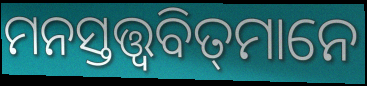
ମନସ୍ତତ୍ତ୍ୱବିତ୍‌ମାନେ